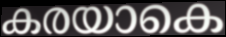
കരയാകെ